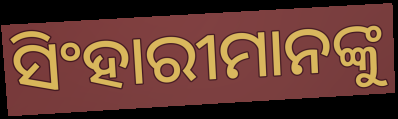
ସିଂହାରୀମାନଙ୍କୁ